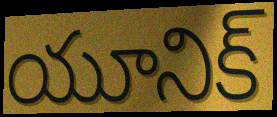
యూనిక్